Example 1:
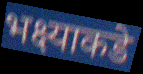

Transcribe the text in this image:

भक्ष्याकडे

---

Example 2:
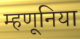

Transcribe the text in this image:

म्हणूनिया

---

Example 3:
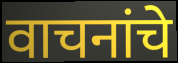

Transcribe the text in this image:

वाचनांचे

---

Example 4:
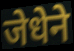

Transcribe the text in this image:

जेधेने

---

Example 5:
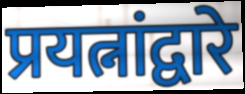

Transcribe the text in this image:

प्रयत्नांद्वारे